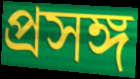
প্ৰসঙ্গ